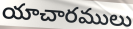
యాచారములు